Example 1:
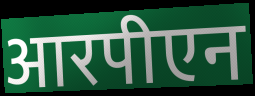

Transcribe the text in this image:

आरपीएन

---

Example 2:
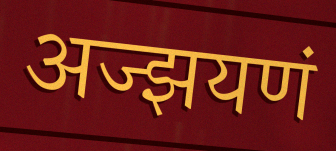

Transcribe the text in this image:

अज्झयणं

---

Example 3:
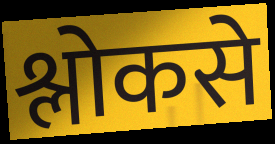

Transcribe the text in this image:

श्लोकसे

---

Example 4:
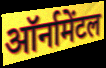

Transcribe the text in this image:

ऑर्नामेंटल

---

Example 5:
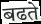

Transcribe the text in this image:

बढते